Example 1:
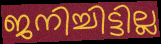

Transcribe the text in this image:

ജനിച്ചിട്ടില്ല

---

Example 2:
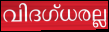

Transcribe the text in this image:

വിദഗ്ധരല്ല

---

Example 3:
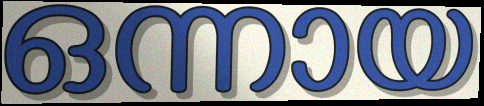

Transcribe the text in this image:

ഒന്നായ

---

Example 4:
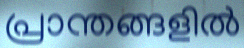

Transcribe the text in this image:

പ്രാന്തങ്ങളിൽ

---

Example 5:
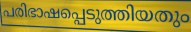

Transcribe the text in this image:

പരിഭാഷപ്പെടുത്തിയതും